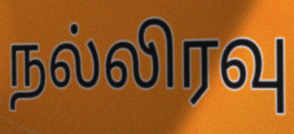
நல்லிரவு